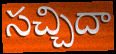
సచ్చిదా